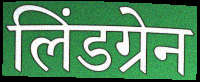
लिंडग्रेन